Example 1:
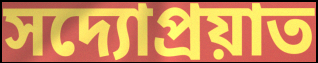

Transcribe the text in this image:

সদ্যোপ্রয়াত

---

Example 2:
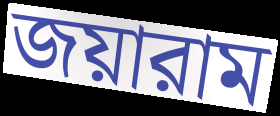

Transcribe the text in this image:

জয়ারাম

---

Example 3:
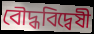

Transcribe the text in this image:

বৌদ্ধবিদ্বেষী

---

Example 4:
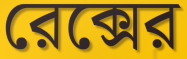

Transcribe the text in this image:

রেক্সের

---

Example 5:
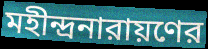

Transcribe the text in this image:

মহীন্দ্রনারায়ণের